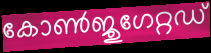
കോൺജുഗേറ്റഡ്